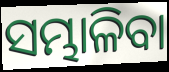
ସମ୍ଭାଳିବା